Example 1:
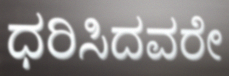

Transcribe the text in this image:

ಧರಿಸಿದವರೇ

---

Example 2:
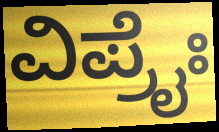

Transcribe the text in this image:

ವಿಪ್ರೈಃ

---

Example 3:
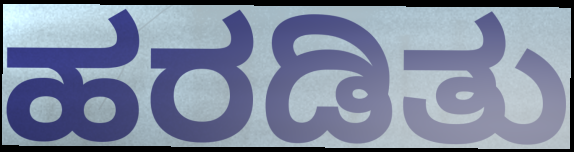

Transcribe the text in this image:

ಹರಡಿತು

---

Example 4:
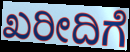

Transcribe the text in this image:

ಖರೀದಿಗೆ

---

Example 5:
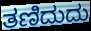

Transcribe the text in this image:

ತಣಿದುದು